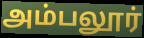
அம்பலூர்